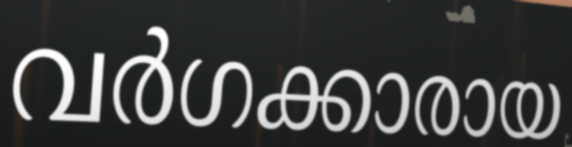
വർഗക്കാരായ